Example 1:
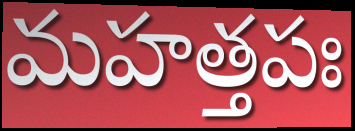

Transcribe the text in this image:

మహత్తపః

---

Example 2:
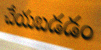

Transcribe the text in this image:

చేయబడడం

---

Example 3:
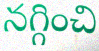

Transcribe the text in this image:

నగ్గించి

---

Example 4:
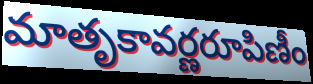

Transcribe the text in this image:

మాతృకావర్ణరూపిణీం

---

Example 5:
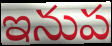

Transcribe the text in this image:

ఇనుప